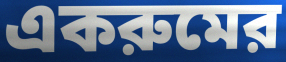
একরুমের